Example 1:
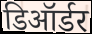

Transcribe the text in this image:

डिऑर्डर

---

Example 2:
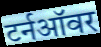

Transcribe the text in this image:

टर्नऑवर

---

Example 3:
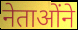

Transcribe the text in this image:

नेताओंने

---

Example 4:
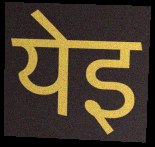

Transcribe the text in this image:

येइ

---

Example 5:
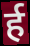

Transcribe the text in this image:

र्ह